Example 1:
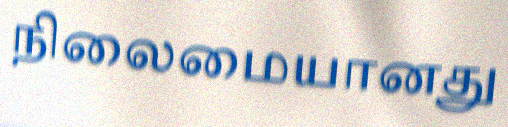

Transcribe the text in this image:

நிலைமையானது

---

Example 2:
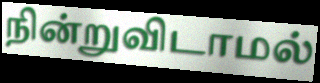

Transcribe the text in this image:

நின்றுவிடாமல்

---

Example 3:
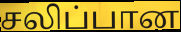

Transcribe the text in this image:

சலிப்பான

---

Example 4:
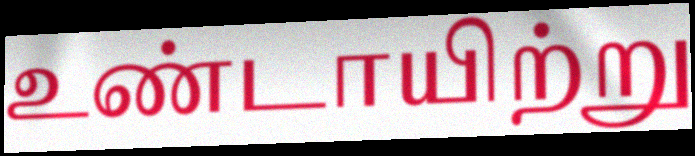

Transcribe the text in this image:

உண்டாயிற்று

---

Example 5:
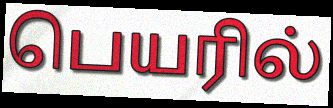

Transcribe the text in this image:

பெயரில்